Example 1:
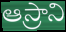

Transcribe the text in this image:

ఆస్రాని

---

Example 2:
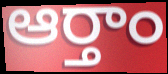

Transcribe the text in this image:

ఆర్తాం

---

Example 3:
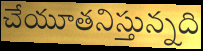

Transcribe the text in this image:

చేయూతనిస్తున్నది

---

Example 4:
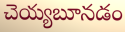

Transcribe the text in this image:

చెయ్యబూనడం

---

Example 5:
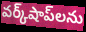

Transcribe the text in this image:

వర్క్‌షాప్‌లను